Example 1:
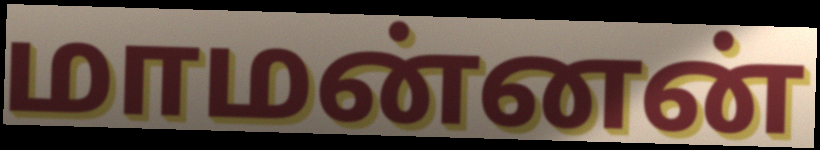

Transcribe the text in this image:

மாமன்னன்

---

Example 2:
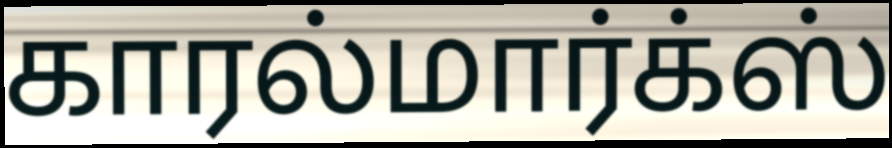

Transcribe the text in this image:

காரல்மார்க்ஸ்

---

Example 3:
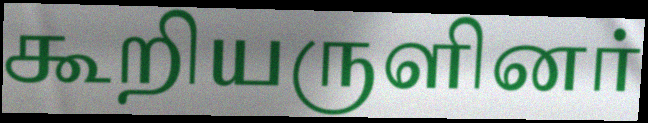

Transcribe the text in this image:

கூறியருளினர்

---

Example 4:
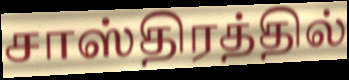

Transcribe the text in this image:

சாஸ்திரத்தில்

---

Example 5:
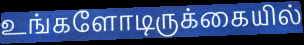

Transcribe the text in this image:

உங்களோடிருக்கையில்